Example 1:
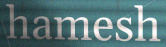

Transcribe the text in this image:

hamesh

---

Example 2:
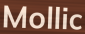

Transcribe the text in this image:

Mollic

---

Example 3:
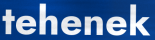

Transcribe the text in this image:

tehenek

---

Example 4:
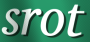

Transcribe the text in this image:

srot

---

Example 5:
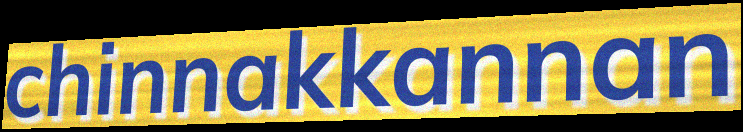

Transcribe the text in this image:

chinnakkannan